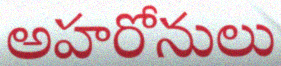
అహరోనులు